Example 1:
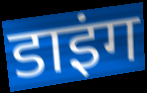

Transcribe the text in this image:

डाइंग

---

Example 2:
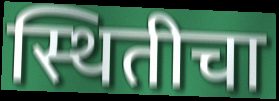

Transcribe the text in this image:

स्थितीचा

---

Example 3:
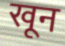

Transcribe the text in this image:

खून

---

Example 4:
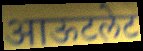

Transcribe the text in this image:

आऊटलेट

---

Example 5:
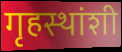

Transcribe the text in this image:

गृहस्थांशी